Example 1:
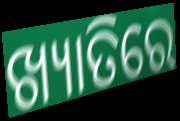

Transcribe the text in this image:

ଖ୍ୟାତିରେ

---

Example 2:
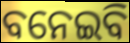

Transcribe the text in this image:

ବନେଇବି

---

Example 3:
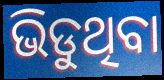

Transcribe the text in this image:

ଭିଡୁଥିବା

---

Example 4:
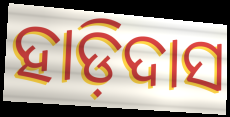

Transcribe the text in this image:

ହାଡ଼ିଦାସ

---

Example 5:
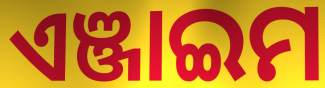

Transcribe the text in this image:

ଏଞ୍ଜାଇମ